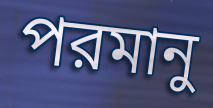
পরমানু